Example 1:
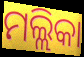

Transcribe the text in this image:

ମଲ୍ଲିକା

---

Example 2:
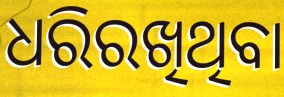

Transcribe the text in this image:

ଧରିରଖିଥିବା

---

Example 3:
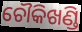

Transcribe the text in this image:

ଚୌକିଖଣ୍ଡି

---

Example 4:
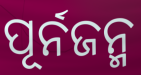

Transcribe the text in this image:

ପୂର୍ନଜନ୍ମ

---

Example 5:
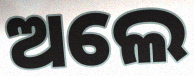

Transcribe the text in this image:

ଅଲେ